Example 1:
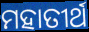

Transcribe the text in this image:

ମହାତୀର୍ଥ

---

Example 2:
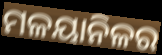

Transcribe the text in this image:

ମଳୟାନିଳର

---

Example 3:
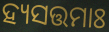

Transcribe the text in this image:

ହ୍ୟସତ୍ତମାଃ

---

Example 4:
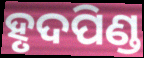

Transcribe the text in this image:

ହୃଦପିଣ୍ଡ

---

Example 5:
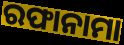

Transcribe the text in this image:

ରଫାନାମା